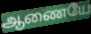
ஆணையே